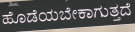
ಹೊಡೆಯಬೇಕಾಗುತ್ತದೆ